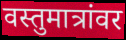
वस्तुमात्रांवर